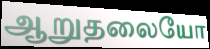
ஆறுதலையோ